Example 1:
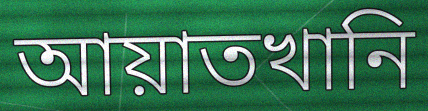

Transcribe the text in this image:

আয়াতখানি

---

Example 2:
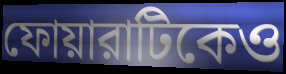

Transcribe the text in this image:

ফোয়ারাটিকেও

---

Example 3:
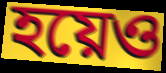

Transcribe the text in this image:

হয়েও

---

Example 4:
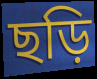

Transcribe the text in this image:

ছড়ি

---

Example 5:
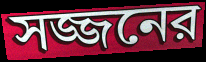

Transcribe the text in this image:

সজ্জনের